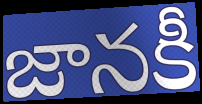
జానకీ